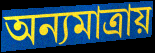
অন্যমাত্রায়